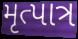
મૃત્પાત્ર